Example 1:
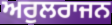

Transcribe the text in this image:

ਅਰੁਲਰਾਜਨ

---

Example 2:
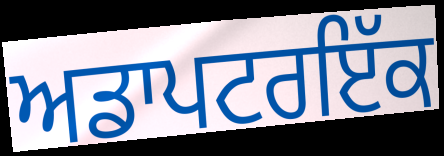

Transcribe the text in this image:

ਅਡਾਪਟਰਇੱਕ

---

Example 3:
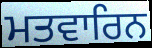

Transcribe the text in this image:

ਮਤਵਾਰਿਨ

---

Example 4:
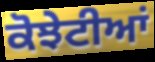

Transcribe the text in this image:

ਕੋਝੇਟੀਆਂ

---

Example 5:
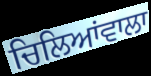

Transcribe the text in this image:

ਚਿਲਿਆਂਵਾਲਾ